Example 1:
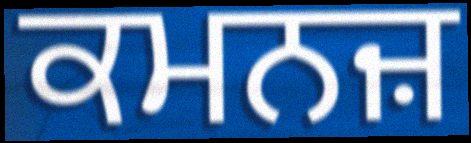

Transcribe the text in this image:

ਕਮਨਜ਼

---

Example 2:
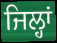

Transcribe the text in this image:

ਜਿਲ੍ਹਾਂ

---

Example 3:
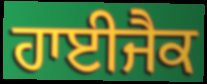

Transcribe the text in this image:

ਹਾਈਜੈਕ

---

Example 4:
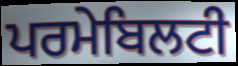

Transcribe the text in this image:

ਪਰਮੇਬਿਲਟੀ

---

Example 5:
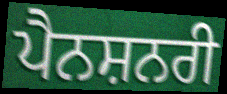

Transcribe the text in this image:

ਪੈਨਸ਼ਨਰੀ